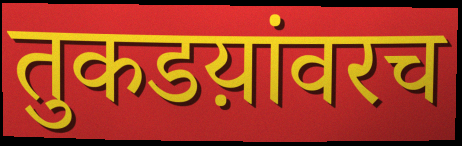
तुकडय़ांवरच